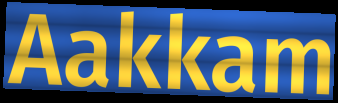
Aakkam